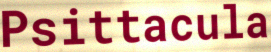
Psittacula